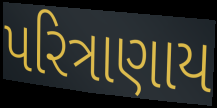
પરિત્રાણાય